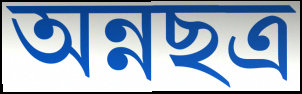
অন্নছত্র